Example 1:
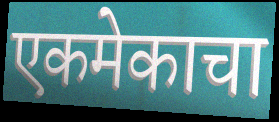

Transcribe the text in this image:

एकमेकाचा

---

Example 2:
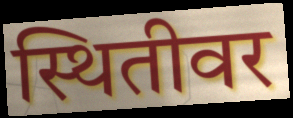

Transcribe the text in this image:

स्थितीवर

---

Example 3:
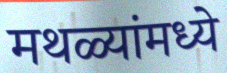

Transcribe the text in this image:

मथळ्यांमध्ये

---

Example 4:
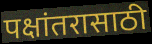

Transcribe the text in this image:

पक्षांतरासाठी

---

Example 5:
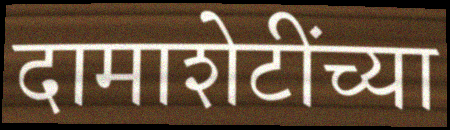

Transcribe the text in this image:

दामाशेटींच्या